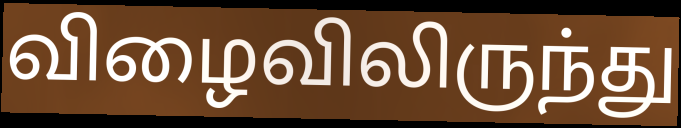
விழைவிலிருந்து